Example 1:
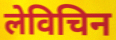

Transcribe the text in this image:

लेविचिन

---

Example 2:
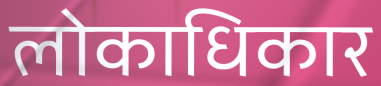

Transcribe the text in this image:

लोकाधिकार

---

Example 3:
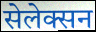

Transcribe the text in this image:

सेलेक्सन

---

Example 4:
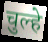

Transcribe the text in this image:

चुल्हे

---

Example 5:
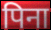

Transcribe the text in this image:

पिना